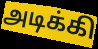
அடிக்கி